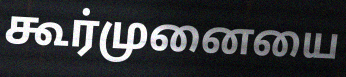
கூர்முனையை